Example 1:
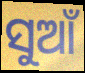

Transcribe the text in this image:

ସୁଆଁ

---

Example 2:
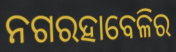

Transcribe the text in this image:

ନଗରହାବେଳିର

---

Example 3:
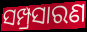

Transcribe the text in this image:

ସମ୍ପ୍ରସାରଣ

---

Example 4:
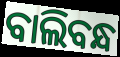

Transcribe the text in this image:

ବାଲିବନ୍ଧ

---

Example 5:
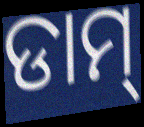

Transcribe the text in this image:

ଡାମ୍